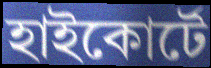
হাইকোর্টে